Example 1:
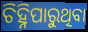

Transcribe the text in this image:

ଚିହ୍ନିପାରୁଥିବା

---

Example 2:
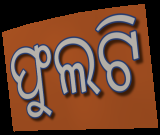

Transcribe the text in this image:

ଫୁଲଟି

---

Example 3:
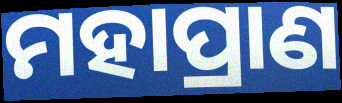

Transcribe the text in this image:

ମହାପ୍ରାଣ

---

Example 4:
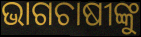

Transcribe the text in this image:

ଭାଗଚାଷୀଙ୍କୁ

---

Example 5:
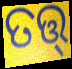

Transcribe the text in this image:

ତତ୍ତ୍